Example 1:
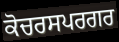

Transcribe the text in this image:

ਕੋਚਰਸਪਰਗਰ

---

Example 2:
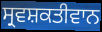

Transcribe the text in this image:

ਸ੍ਰਵਸ਼ਕਤੀਵਾਨ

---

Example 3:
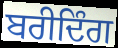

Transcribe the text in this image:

ਬਰੀਦਿੰਗ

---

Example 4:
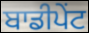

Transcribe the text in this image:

ਬਾਡੀਪੇਂਟ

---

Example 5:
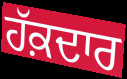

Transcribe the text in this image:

ਹੱਕ਼ਦਾਰ